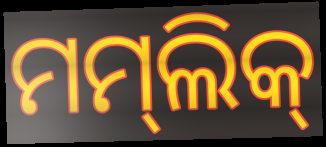
ମମ୍‌ଲିକ୍